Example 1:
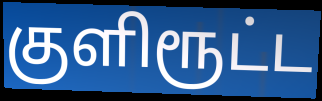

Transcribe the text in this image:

குளிரூட்ட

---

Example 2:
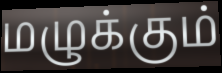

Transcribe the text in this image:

மழுக்கும்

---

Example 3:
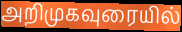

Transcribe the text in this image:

அறிமுகவுரையில்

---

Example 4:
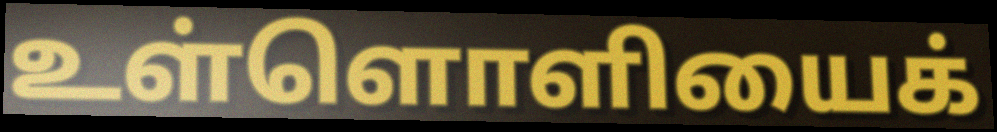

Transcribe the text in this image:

உள்ளொளியைக்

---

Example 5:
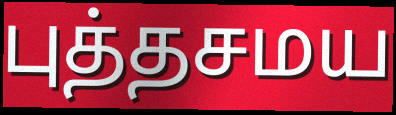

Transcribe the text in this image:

புத்தசமய